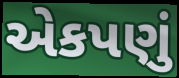
એકપણું